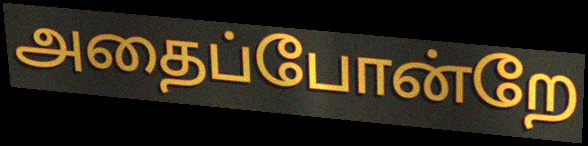
அதைப்போன்றே